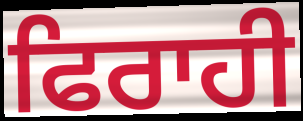
ਫਿਰਾਹੀ